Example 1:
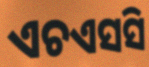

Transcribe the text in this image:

ଏଚଏସସି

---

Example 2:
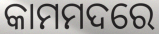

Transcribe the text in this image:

କାମମଦରେ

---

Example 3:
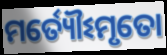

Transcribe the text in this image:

ମର୍ତ୍ୟୌଽମୃତୋ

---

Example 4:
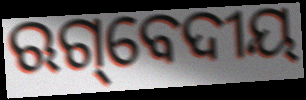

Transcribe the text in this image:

ଋଗ୍‌ବେଦୀୟ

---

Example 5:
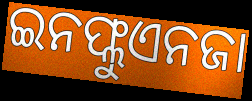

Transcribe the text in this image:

ଇନଫ୍ଲୁଏନଜା